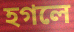
হগলে